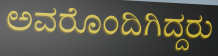
ಅವರೊಂದಿಗಿದ್ದರು